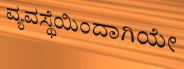
ವ್ಯವಸ್ಥೆಯಿಂದಾಗಿಯೇ